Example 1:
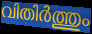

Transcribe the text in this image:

വിതിർത്തും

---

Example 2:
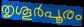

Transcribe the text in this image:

തൃശൂർപൂരം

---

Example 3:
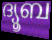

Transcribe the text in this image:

ദ്യൂബ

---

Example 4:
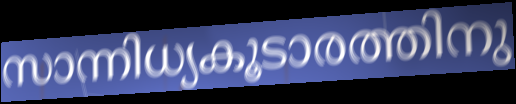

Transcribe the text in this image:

സാന്നിധ്യകൂടാരത്തിനു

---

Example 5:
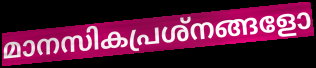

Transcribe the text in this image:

മാനസികപ്രശ്നങ്ങളോ